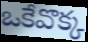
ఒకేవొక్క